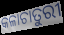
କଳାଚାତୁରୀ